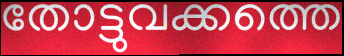
തോട്ടുവക്കത്തെ